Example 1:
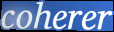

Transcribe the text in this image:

coherer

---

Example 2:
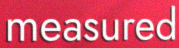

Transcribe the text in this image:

measured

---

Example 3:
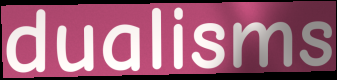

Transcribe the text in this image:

dualisms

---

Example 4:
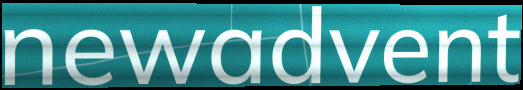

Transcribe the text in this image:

newadvent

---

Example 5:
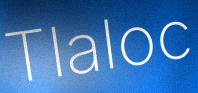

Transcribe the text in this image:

Tlaloc